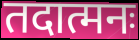
तदात्मनः